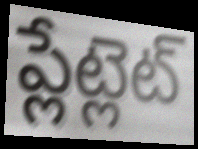
ప్లేట్లెట్